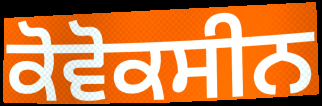
ਕੋਵੋਕਸੀਨ